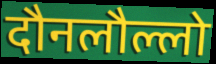
दौनलौल्लो